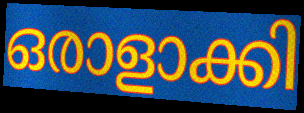
ഒരാളാക്കി